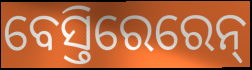
ବେସ୍ତିରେରେନ୍